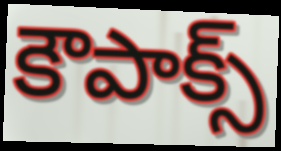
కౌపాక్స్